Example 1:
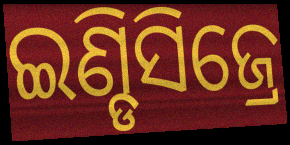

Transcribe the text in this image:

ଇଣ୍ଡିସିଜ୍ରେ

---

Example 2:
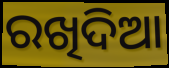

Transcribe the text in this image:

ରଖିଦିଆ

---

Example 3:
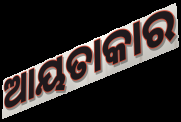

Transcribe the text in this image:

ଆୟତାକାର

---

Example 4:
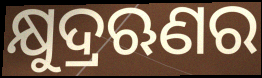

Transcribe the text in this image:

କ୍ଷୁଦ୍ରଋଣର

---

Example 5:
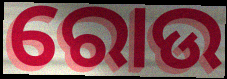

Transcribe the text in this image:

ରୋଉ